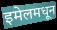
इमेलमधून